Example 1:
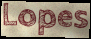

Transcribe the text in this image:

Lopes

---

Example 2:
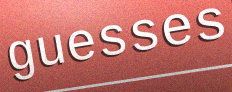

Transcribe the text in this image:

guesses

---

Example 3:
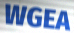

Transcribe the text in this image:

WGEA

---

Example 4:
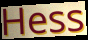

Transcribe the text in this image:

Hess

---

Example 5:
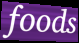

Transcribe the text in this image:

foods